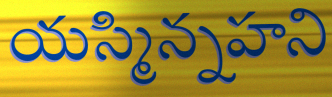
యస్మిన్నహని